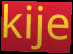
kije